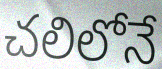
చలిలోనే